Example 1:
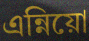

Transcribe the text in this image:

এন্নিয়ো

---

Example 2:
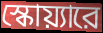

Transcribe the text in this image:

স্কোয়্যারে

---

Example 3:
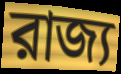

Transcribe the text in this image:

রাজ্য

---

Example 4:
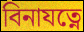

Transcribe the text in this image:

বিনাযত্নে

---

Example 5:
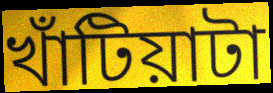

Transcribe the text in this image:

খাঁটিয়াটা